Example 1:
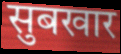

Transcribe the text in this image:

सुबखार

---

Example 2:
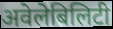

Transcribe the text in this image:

अवेलेबिलिटी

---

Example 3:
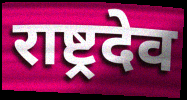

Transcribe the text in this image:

राष्ट्रदेव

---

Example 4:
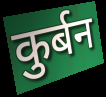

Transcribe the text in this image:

कुर्बन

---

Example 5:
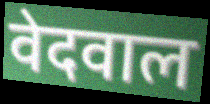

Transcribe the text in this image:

वेदवाल